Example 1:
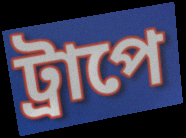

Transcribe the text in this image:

ট্রাপে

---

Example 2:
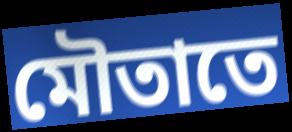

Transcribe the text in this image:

মৌতাতে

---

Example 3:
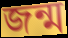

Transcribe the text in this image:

জন্ম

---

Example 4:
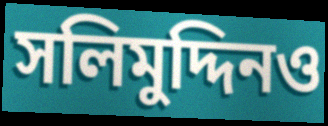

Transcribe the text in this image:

সলিমুদ্দিনও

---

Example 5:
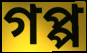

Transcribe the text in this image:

গপ্প